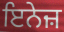
ਇਨੇਜ਼